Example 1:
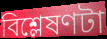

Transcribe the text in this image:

বিশ্লেষণটা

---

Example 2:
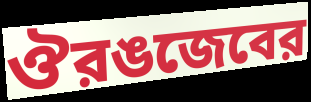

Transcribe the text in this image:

ঔরঙজেবের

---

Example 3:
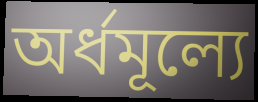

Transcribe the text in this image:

অর্ধমূল্যে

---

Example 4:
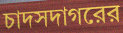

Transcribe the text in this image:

চাদসদাগরের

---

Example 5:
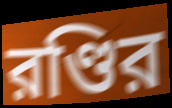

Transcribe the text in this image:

রণ্ডির